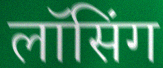
लॉसिंग